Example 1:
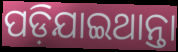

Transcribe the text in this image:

ପଡ଼ିଯାଇଥାନ୍ତା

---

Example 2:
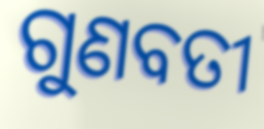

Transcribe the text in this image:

ଗୁଣବତୀ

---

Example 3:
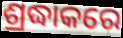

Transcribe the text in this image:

ଶ୍ରଦ୍ଧାକରେ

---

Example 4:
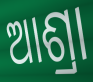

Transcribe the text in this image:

ଆଶ୍ରା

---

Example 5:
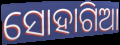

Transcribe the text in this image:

ସୋହାଗିଆ